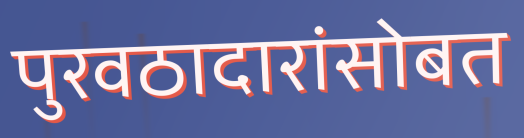
पुरवठादारांसोबत